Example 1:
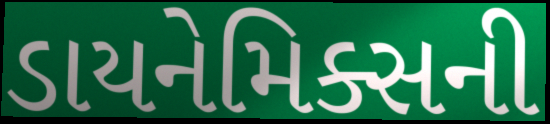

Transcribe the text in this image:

ડાયનેમિક્સની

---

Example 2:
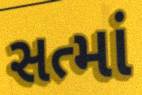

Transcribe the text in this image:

સત્માં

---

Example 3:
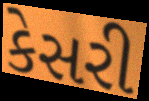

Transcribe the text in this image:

કેસરી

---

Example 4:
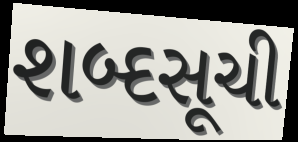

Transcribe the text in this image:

શબ્દસૂચી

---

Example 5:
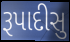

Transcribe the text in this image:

રૂપાદીસુ